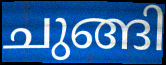
ചുങ്ങി